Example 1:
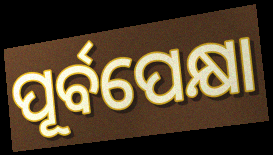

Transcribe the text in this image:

ପୂର୍ବପେକ୍ଷା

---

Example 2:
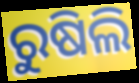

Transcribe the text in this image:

ରୁଷିଲି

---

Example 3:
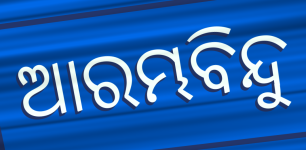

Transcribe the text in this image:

ଆରମ୍ଭବିନ୍ଦୁ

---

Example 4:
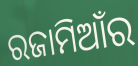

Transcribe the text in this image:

ରଜାମିଆଁର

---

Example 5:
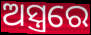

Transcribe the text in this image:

ଅସ୍ତ୍ରରେ